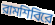
রামশিবিরে